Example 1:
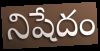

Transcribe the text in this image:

నిషేదం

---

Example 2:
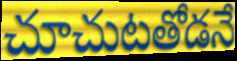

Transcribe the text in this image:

చూచుటతోడనే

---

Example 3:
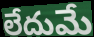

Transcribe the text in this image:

లేదుమే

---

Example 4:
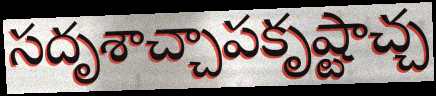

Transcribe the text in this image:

సదృశాచ్చాపకృష్టాచ్చ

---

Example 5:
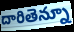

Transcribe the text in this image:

దారితెన్నూ